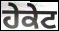
ਹੇਕੇਟ